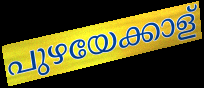
പുഴയേക്കാള്